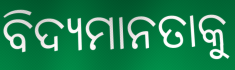
ବିଦ୍ୟମାନତାକୁ